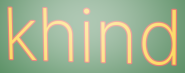
khind